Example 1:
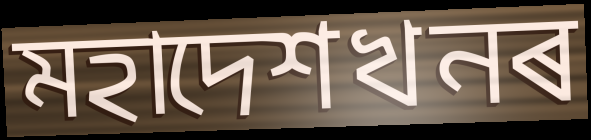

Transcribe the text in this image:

মহাদেশখনৰ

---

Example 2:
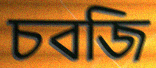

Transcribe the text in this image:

চবজি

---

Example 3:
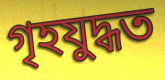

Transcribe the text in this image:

গৃহযুদ্ধত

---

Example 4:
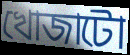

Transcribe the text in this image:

খোজাটো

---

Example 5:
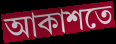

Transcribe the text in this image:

আকাশতে